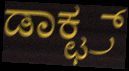
ಡಾಕ್ಟ್ರ್